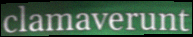
clamaverunt